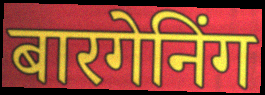
बारगेनिंग